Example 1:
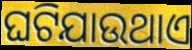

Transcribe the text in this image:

ଘଟିଯାଉଥାଏ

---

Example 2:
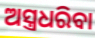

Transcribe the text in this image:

ଅସ୍ତ୍ରଧରିବା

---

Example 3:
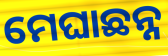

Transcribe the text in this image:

ମେଘାଛନ୍ନ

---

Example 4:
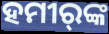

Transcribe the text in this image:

ହମୀର୍‍ଙ୍କ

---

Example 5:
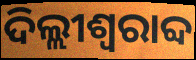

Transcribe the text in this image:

ଦିଲ୍ଲୀଶ୍ୱରାବ୍ଦ